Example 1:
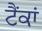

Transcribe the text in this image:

ਟੈਂਕਾਂ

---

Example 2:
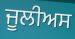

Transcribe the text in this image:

ਜੂਲੀਅਸ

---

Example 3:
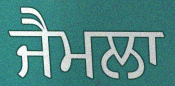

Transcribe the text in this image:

ਜੈਮਲਾ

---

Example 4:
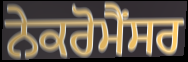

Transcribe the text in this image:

ਨੇਕਰੋਮੈਂਸਰ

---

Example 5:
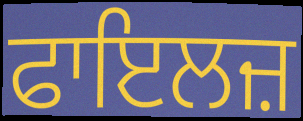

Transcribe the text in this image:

ਫਾਇਲਜ਼